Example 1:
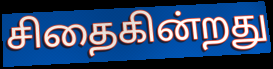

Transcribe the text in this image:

சிதைகின்றது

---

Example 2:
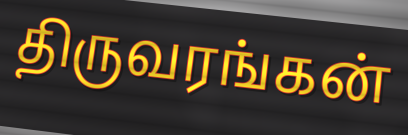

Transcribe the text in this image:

திருவரங்கன்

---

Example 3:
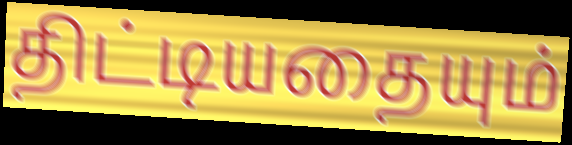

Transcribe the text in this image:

திட்டியதையும்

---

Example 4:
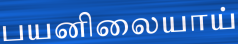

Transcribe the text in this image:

பயனிலையாய்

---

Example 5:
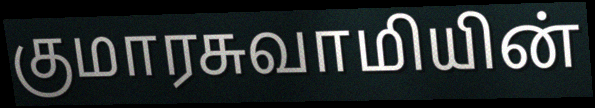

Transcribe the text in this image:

குமாரசுவாமியின்